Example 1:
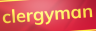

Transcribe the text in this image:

clergyman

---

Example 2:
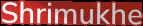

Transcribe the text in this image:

Shrimukhe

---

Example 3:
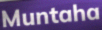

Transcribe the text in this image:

Muntaha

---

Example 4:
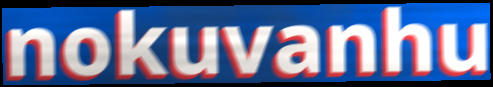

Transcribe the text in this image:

nokuvanhu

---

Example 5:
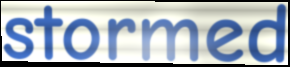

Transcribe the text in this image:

stormed